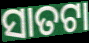
ସାତଟା